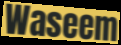
Waseem